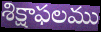
శిక్షాఫలము